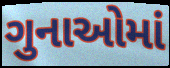
ગુનાઓમાં